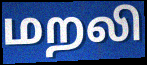
மறலி